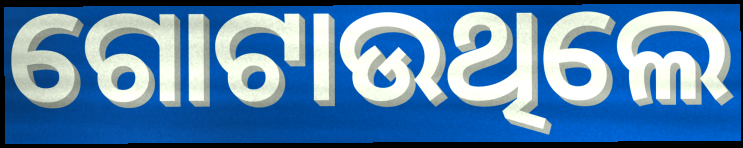
ଗୋଟାଉଥିଲେ